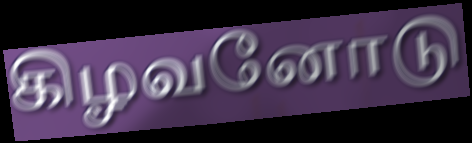
கிழவனோடு